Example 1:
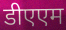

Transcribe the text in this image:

डीएएम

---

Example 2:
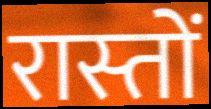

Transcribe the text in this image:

रास्‍तों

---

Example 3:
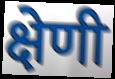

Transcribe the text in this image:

क्षेणी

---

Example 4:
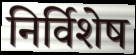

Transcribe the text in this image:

निर्विशेष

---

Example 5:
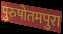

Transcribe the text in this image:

पुरुषोतमपुरा